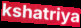
kshatriya